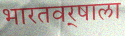
भारतवर्षाला